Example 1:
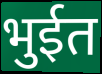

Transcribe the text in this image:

भुईत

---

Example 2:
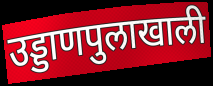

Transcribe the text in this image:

उड्डाणपुलाखाली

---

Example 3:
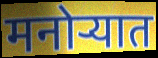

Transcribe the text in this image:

मनोऱ्यात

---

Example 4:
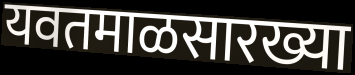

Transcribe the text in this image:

यवतमाळसारख्या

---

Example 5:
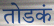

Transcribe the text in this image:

तोडकं